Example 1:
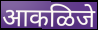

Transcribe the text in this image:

आकळिजे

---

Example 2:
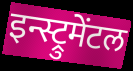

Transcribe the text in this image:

इन्स्ट्रुमेंटल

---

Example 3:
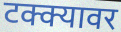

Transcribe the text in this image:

टक्क्यावर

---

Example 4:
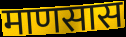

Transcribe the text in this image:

माणसास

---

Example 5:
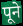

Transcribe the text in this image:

पूने